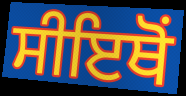
ਸੀਇਥੋਂ